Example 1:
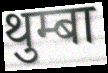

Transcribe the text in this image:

थुम्बा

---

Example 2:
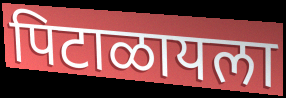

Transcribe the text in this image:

पिटाळायला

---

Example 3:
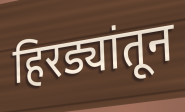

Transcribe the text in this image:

हिरड्यांतून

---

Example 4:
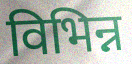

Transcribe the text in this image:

विभिन्न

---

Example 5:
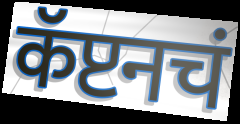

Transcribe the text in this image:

कॅप्टनचं